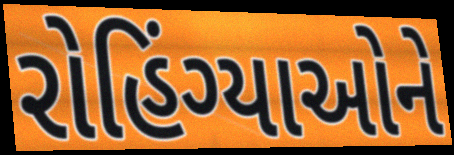
રોહિંગ્યાઓને